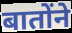
बातोंने